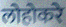
लोहोकरे